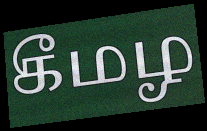
கீமழ